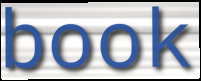
book